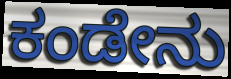
ಕಂಡೇನು